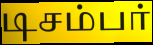
டிசம்பர்